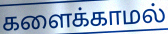
களைக்காமல்